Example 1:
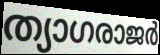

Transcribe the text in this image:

ത്യാഗരാജർ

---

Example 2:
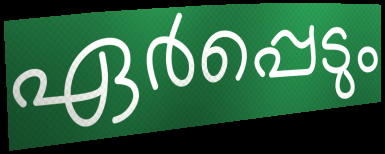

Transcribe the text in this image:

ഏർപ്പെടും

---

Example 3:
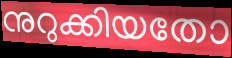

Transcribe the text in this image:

നുറുക്കിയതോ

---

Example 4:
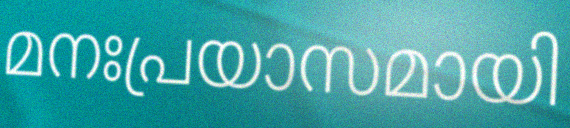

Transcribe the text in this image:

മനഃപ്രയാസമായി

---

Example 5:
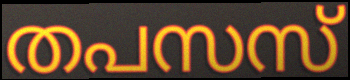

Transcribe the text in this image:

തപസസ്